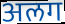
अलग